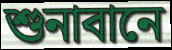
শুনাবানে